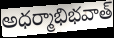
అధర్మాభిభవాత్